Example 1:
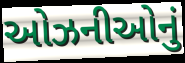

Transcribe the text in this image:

ઓઝનીઓનું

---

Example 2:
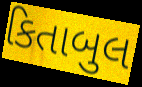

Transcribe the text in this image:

કિતાબુલ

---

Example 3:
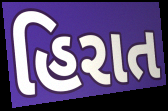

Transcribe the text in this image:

હિરાત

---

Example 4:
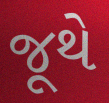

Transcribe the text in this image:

જૂથે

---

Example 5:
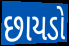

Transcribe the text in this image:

છાયડો